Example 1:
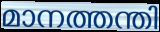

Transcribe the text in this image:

മാനത്തന്തി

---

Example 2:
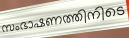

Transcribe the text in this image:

സംഭാഷണത്തിനിടെ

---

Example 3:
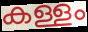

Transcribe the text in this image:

കള്ളം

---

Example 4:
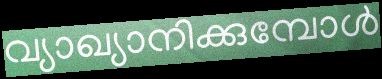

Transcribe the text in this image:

വ്യാഖ്യാനിക്കുമ്പോൾ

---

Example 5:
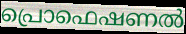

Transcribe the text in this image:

പ്രൊഫെഷണൽ